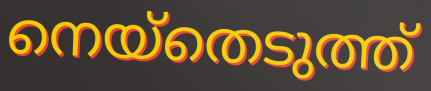
നെയ്തെടുത്ത്